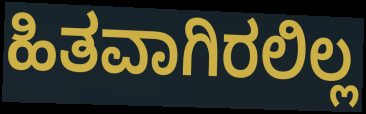
ಹಿತವಾಗಿರಲಿಲ್ಲ